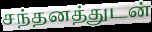
சந்தனத்துடன்